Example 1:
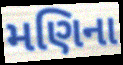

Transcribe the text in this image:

મણિના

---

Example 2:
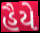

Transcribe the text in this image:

હૈયે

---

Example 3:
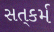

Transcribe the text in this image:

સત્‌કર્મ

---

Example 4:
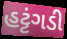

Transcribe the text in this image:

હટ્ટંગડી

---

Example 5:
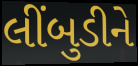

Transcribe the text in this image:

લીંબુડીને